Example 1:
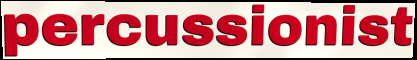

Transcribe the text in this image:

percussionist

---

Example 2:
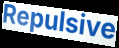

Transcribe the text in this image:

Repulsive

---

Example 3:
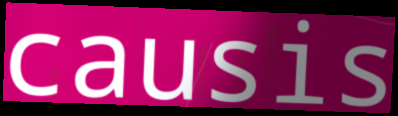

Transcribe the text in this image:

causis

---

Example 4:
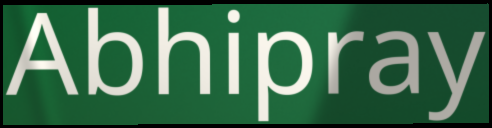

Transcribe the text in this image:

Abhipray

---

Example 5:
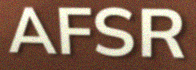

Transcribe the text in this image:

AFSR